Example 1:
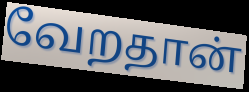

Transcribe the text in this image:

வேறதான்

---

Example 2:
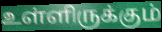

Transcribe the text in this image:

உள்ளிருக்கும்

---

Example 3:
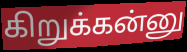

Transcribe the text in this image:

கிறுக்கன்னு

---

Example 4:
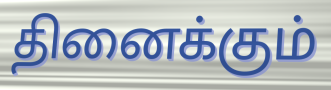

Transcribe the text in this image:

தினைக்கும்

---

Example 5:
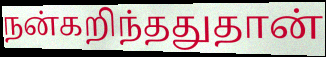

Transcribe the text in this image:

நன்கறிந்ததுதான்